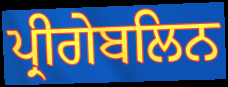
ਪ੍ਰੀਗੇਬਲਿਨ